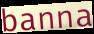
banna